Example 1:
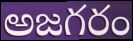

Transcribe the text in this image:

అజగరం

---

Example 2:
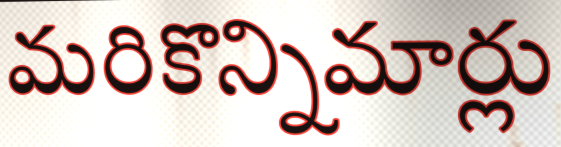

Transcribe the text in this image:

మరికొన్నిమార్లు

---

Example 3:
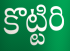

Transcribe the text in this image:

కొట్టిరి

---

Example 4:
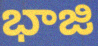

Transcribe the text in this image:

భాజి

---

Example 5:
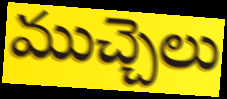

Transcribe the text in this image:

ముచ్చెలు